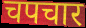
चपचार